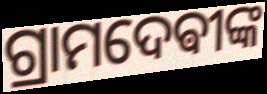
ଗ୍ରାମଦେଵୀଙ୍କ